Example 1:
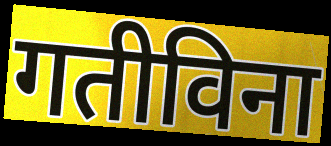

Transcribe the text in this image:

गतीविना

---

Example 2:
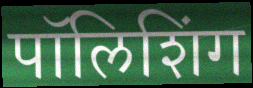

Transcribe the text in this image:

पॉलिशिंग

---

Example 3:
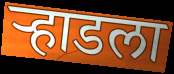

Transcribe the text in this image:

ऱ्हाडला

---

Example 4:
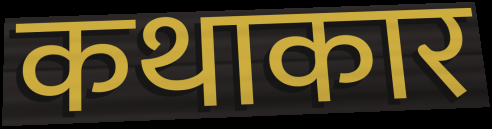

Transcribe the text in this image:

कथाकार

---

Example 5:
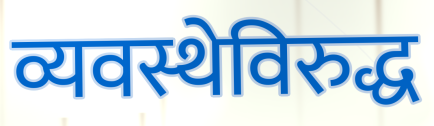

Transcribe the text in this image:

व्यवस्थेविरुद्ध